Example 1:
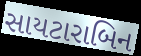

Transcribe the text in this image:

સાયટારાબિન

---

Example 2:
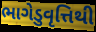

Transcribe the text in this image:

ભાગેડુવૃત્તિથી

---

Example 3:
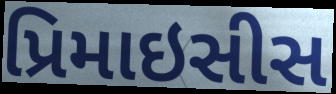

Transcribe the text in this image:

પ્રિમાઇસીસ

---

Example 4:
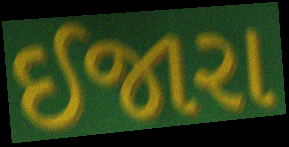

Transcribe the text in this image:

ઈજારા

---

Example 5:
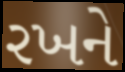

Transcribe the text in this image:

રખને